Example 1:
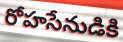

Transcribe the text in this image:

రోహసేనుడికి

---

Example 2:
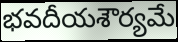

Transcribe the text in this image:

భవదీయశౌర్యమే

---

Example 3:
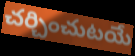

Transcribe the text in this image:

చర్చించుటయే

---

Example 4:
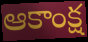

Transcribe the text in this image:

ఆకాంక్ష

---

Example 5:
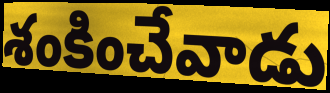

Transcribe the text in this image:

శంకించేవాడు